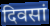
दिवसां